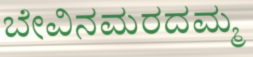
ಬೇವಿನಮರದಮ್ಮ